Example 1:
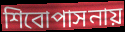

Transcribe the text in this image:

শিবোপাসনায়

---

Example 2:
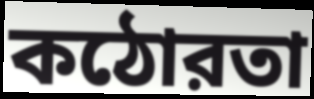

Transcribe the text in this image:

কঠোরতা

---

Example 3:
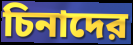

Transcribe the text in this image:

চিনাদের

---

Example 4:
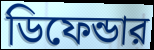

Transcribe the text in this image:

ডিফেন্ডার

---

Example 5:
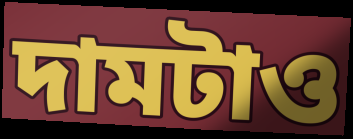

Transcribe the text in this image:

দামটাও